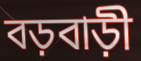
বড়বাড়ী